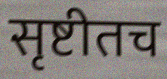
सृष्टीतच